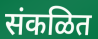
संकळित